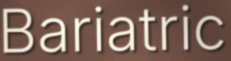
Bariatric